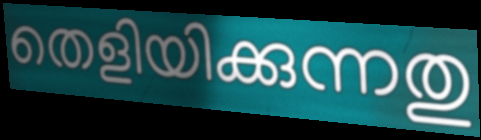
തെളിയിക്കുന്നതു